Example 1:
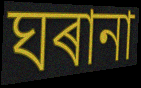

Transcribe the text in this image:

ঘৰানা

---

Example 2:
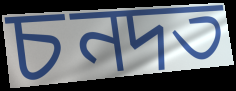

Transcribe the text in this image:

চনদত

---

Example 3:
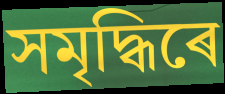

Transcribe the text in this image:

সমৃদ্ধিৰে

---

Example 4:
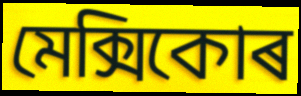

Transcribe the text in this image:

মেক্সিকোৰ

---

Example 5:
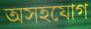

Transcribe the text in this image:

অসহযোগ